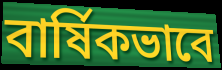
বার্ষিকভাবে